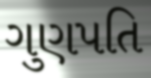
ગુણપતિ